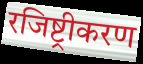
रजिष्ट्रीकरण